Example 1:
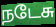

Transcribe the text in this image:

நடேசு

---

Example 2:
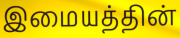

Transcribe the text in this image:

இமையத்தின்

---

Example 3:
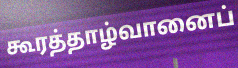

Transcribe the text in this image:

கூரத்தாழ்வானைப்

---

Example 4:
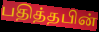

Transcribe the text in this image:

பதித்தபின்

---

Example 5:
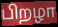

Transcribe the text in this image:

பிறழா